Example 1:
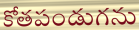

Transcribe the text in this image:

కోతపండుగను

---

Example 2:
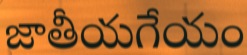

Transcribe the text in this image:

జాతీయగేయం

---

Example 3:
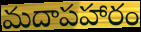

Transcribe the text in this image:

మదాపహారం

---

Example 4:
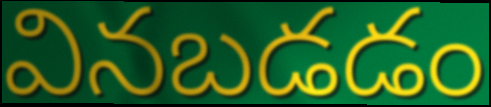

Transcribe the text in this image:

వినబడడం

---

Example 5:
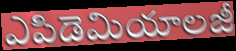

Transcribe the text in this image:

ఎపిడెమియాలజీ